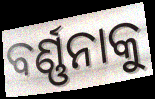
ବର୍ଣ୍ଣନାକୁ